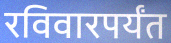
रविवारपर्यंत